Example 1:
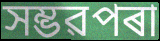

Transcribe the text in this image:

সম্ভৱপৰা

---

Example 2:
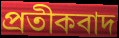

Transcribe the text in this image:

প্ৰতীকবাদ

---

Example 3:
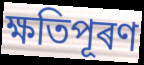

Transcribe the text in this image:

ক্ষতিপূৰণ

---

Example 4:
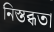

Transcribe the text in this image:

নিস্তব্ধতা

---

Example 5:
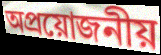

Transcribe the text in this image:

অপ্ৰয়োজনীয়